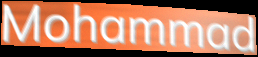
Mohammad